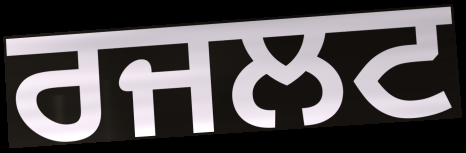
ਰਜਲਟ